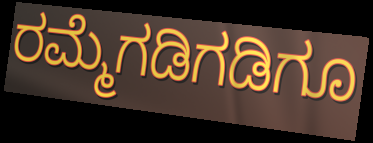
ರಮ್ಮೆಗಡಿಗಡಿಗೂ